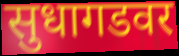
सुधागडवर